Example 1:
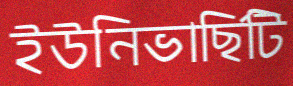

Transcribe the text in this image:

ইউনিভাৰ্ছিটি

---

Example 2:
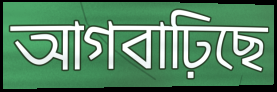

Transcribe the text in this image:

আগবাঢ়িছে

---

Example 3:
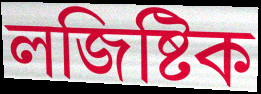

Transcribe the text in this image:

লজিষ্টিক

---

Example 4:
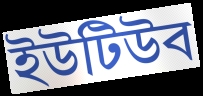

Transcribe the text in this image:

ইউটিউব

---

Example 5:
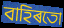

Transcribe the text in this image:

বাহিৰতো